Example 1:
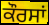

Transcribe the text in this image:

ਕੌਰਸਾਂ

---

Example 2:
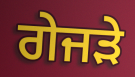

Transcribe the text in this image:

ਗੇਜੜੇ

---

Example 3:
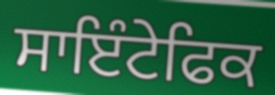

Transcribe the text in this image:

ਸਾਇੰਟੇਫਿਕ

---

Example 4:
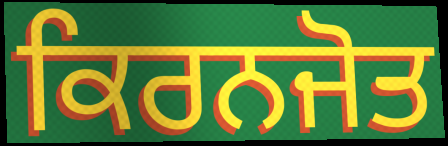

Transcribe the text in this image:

ਕਿਰਨਜੋਤ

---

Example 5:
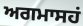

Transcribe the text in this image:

ਅਗਮਾਸਹਂ